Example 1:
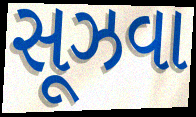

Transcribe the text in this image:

સૂઝવા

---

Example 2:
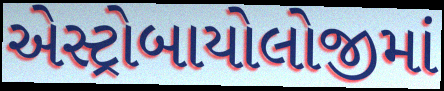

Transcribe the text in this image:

એસ્ટ્રોબાયોલોજીમાં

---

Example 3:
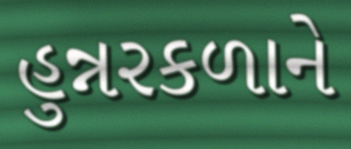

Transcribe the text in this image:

હુન્નરકળાને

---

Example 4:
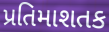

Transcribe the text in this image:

પ્રતિમાશતક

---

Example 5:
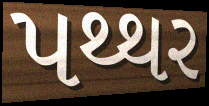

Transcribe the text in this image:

પથ્થર